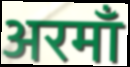
अरमाँ